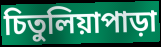
চিতুলিয়াপাড়া